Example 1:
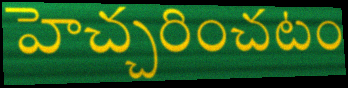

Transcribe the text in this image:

హెచ్చరించటం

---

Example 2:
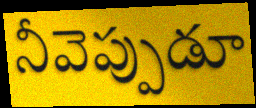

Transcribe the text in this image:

నీవెప్పుడూ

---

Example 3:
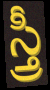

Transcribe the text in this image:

స్త్రీ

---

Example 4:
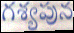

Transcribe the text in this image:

గశ్యపున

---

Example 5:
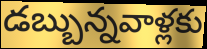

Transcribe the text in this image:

డబ్బున్నవాళ్లకు